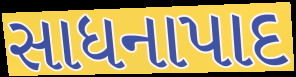
સાધનાપાદ